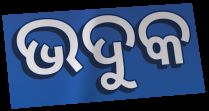
ଭଦୁକ